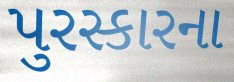
પુરસ્કારના